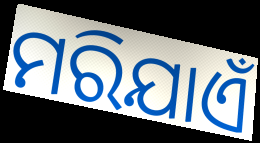
ମରିଯାଏଁ